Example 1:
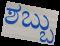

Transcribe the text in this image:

ಶಬ್ಬು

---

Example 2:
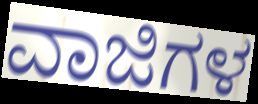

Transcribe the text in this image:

ವಾಜಿಗಳ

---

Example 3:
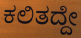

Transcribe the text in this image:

ಕಲಿತದ್ದೇ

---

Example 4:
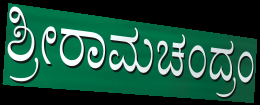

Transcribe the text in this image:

ಶ್ರೀರಾಮಚಂದ್ರಂ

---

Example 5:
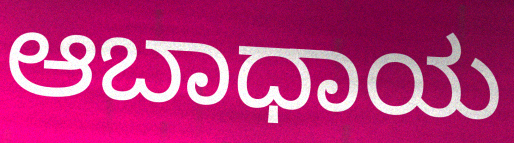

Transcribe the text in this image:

ಆಬಾಧಾಯ